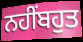
ਨਹੀਂਬਹੁਤ